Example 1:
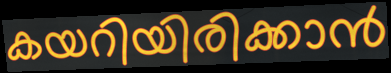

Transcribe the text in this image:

കയറിയിരിക്കാൻ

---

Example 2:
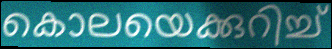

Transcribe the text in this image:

കൊലയെക്കുറിച്ച്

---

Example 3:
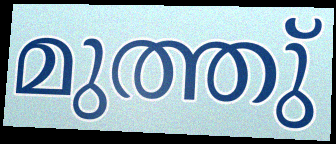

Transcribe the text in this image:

മുത്തു്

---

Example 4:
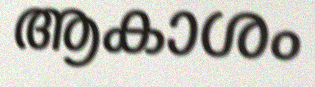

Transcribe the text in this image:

ആകാശം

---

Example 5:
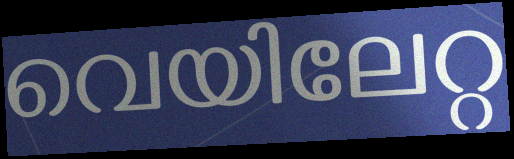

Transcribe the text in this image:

വെയിലേറ്റ